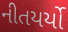
નીતયર્યો